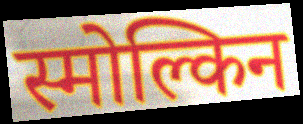
स्मोल्किन